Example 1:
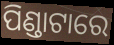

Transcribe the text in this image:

ପିଣ୍ଡାଟାରେ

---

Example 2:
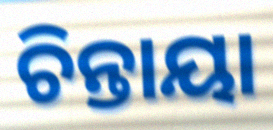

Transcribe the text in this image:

ଚିନ୍ତାୟା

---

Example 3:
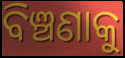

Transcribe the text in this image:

ବିଞ୍ଚଣାକୁ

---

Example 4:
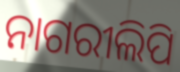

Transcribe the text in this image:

ନାଗରୀଲିପି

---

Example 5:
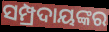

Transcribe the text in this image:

ସମ୍ପ୍ରଦାୟଙ୍କର